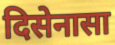
दिसेनासा